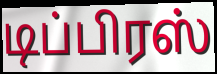
டிப்பிரஸ்